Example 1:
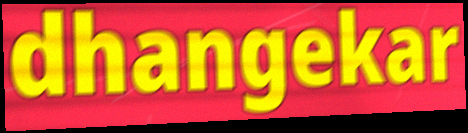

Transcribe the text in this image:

dhangekar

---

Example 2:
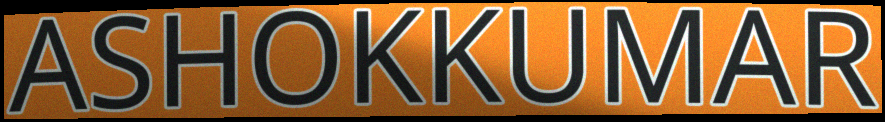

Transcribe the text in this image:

ASHOKKUMAR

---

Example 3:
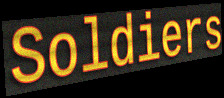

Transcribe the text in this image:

Soldiers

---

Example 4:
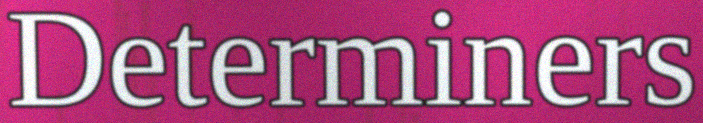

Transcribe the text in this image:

Determiners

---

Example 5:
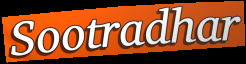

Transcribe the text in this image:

Sootradhar